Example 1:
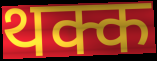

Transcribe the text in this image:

थक्क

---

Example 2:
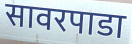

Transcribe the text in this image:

सावरपाडा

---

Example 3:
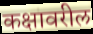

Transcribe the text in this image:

कक्षावरील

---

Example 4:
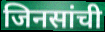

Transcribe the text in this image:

जिनसांची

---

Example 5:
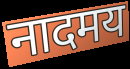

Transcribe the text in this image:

नादमय